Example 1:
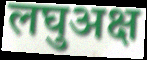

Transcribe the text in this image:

लघुअक्ष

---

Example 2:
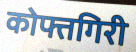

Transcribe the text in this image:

कोफ्तगिरी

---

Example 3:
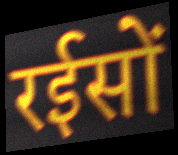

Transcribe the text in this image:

रईसों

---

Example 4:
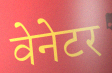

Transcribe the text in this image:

वेनेटर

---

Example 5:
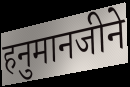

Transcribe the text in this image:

हनुमानजीने